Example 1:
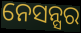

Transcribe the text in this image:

ନେସନ୍ସର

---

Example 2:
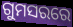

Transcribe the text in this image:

ଗୁମସରରେ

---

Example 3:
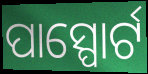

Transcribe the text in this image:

ପାସ୍ପୋର୍ଟ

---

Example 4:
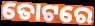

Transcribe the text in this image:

ତୋଟରେ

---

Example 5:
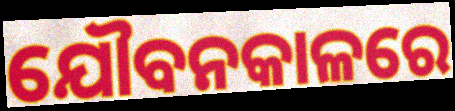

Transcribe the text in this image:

ଯୌବନକାଳରେ